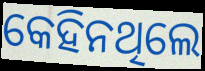
କେହିନଥିଲେ